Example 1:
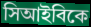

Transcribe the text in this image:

সিআইবিকে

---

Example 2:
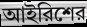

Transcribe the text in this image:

আইরিশের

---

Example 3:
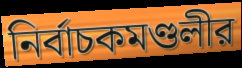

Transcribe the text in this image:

নির্বাচকমণ্ডলীর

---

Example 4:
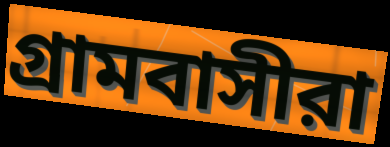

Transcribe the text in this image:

গ্রামবাসীরা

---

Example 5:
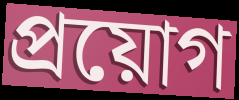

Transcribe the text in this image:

প্রয়োগ